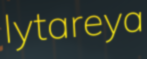
Iytareya